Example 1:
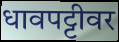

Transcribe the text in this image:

धावपट्टीवर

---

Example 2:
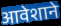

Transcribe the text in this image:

आवेशाने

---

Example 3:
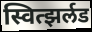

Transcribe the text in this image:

स्वित्झर्लड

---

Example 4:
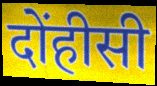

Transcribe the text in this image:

दोंहीसी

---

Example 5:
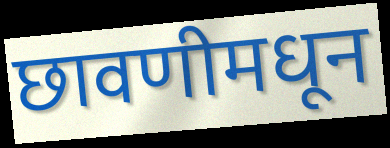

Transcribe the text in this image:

छावणीमधून